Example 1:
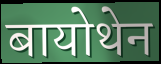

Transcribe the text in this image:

बायोथेन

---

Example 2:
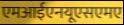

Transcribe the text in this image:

एमआईएनयूएसएमए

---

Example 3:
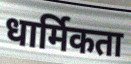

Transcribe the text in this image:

धार्मिकता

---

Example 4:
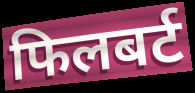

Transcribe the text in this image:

फिलबर्ट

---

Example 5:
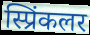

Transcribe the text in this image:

स्प्रिंकलर